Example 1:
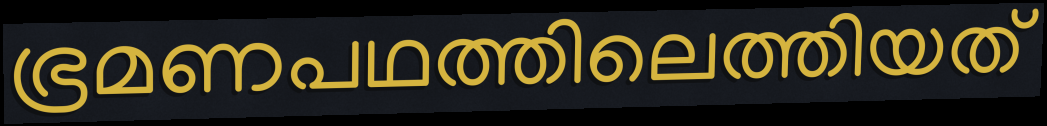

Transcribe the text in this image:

ഭ്രമണപഥത്തിലെത്തിയത്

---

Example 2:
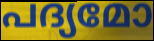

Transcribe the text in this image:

പദ്യമോ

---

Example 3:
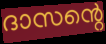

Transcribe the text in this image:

ദാസന്റെ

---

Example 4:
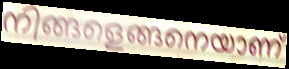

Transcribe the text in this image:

നിങ്ങളെങ്ങനെയാണ്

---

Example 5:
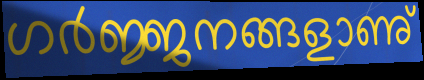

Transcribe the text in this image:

ഗർജ്ജനങ്ങളാണു്